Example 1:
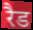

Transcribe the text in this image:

रैड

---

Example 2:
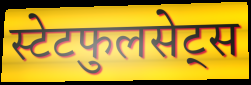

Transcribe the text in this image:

स्टेटफुलसेट्स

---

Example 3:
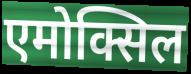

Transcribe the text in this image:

एमोक्सिल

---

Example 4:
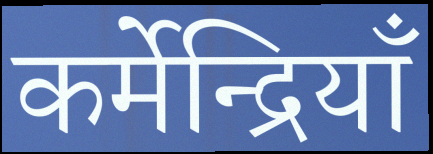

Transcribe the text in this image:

कर्मेन्द्रियाँ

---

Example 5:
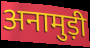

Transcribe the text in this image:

अनामुड़ी